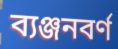
ব্যঞ্জনবৰ্ণ